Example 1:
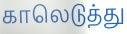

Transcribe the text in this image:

காலெடுத்து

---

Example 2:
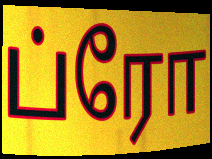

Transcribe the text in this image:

ப்ரோ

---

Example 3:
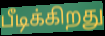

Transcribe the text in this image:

பீடிக்கிறது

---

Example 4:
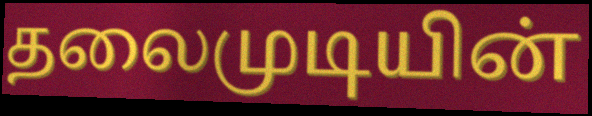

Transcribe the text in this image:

தலைமுடியின்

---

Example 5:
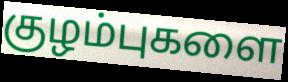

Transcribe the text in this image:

குழம்புகளை